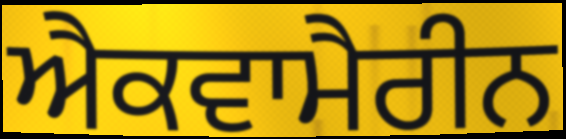
ਐਕਵਾਮੈਰੀਨ